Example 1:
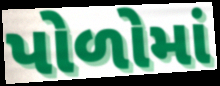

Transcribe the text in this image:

પોળોમાં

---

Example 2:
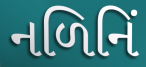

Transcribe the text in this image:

નળિનિં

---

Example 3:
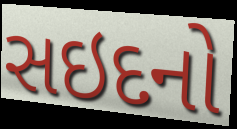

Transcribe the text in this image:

સઇદનો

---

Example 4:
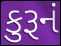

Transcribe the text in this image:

કુરૂનં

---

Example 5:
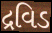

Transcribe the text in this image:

દ્રવિડ